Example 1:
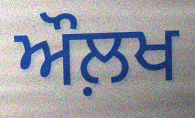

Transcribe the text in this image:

ਔਲ਼ਖ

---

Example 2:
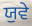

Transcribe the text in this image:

ਯੁਵੇ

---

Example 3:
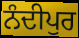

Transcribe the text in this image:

ਨੰਦੀਪੁਰ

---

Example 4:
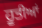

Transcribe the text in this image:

ਹੂਤੀਆਂ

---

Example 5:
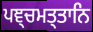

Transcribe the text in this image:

ਪਞ੍ਚਮਤ੍ਤਾਨਿ